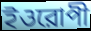
ইওরোপী